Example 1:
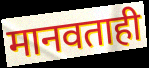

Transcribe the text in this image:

मानवताही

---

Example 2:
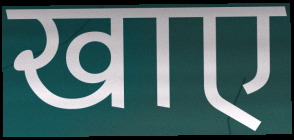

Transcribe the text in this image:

खाए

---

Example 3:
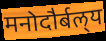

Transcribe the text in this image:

मनोदौर्बल्य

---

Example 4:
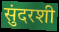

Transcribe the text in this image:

सुंदरशी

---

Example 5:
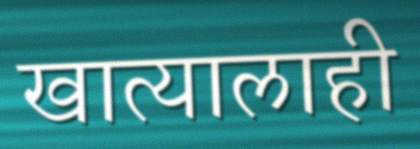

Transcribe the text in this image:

खात्यालाही